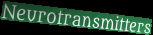
Neurotransmitters